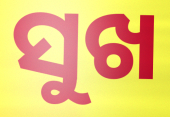
ସୁଖ